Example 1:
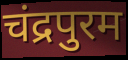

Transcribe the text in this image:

चंद्रपुरम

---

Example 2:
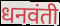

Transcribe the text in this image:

धनवंती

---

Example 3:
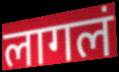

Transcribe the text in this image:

लागलं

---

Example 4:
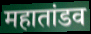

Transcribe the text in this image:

महातांडव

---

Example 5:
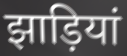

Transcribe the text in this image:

झाड़ियां